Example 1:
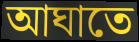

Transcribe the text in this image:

আঘাতে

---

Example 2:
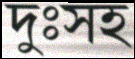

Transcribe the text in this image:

দুঃসহ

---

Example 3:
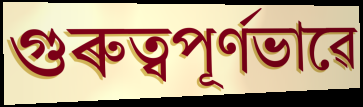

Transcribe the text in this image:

গুৰুত্বপূৰ্ণভাৱে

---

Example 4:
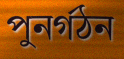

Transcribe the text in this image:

পুনৰ্গঠন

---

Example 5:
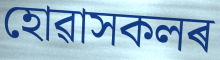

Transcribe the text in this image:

হোৱাসকলৰ